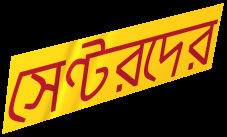
সেণ্টরদের